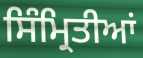
ਸਿੰਮ੍ਰਿਤੀਆਂ